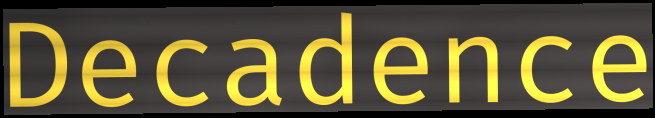
Decadence